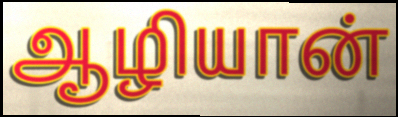
ஆழியான்